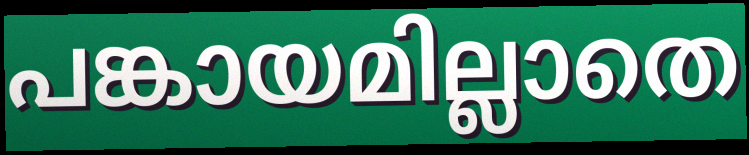
പങ്കായമില്ലാതെ